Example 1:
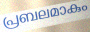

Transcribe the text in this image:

പ്രബലമാകും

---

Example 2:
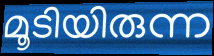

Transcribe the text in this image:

മൂടിയിരുന്ന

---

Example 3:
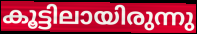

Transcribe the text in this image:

കൂട്ടിലായിരുന്നു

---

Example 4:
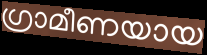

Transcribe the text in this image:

ഗ്രാമീണയായ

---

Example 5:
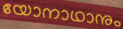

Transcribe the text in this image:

യോനാഥാനും